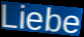
Liebe